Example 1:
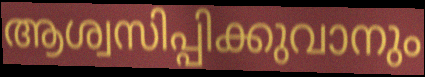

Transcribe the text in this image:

ആശ്വസിപ്പിക്കുവാനും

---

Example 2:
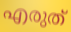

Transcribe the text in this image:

എരുത്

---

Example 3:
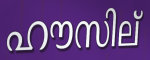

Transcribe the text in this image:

ഹൗസില്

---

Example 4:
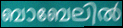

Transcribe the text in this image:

ബാബേലിൽ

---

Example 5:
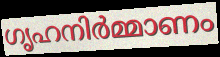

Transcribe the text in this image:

ഗൃഹനിർമ്മാണം